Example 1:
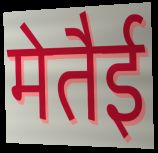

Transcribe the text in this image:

मेतैई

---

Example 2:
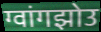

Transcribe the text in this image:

ग्वांगझोउ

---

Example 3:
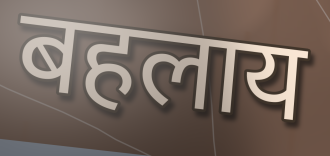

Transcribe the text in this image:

बहलाय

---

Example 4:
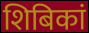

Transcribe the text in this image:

शिबिकां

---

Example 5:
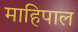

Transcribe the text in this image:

माहिपाल